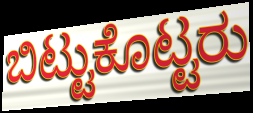
ಬಿಟ್ಟುಕೊಟ್ಟರು